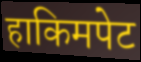
हाकिमपेट